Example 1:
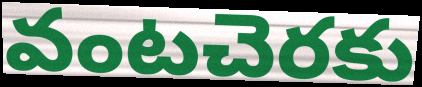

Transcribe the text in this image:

వంటచెరకు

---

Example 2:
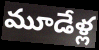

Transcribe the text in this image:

మూడేళ్ల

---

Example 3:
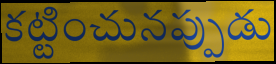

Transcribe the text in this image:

కట్టించునప్పుడు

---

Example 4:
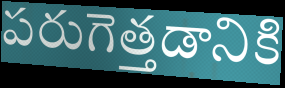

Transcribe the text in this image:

పరుగెత్తడానికి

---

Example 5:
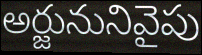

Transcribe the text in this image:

అర్జునునివైపు